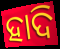
ହାଦି